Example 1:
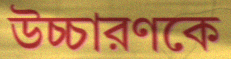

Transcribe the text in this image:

উচ্চারণকে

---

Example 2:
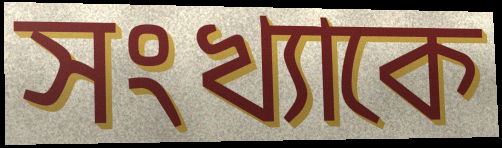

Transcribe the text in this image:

সংখ্যাকে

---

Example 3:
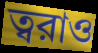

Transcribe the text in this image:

ত্বরাও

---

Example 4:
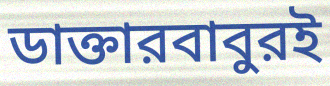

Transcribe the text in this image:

ডাক্তারবাবুরই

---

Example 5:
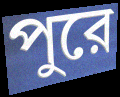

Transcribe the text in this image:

পুরে